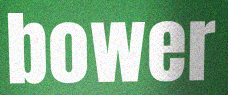
bower